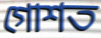
গোশত